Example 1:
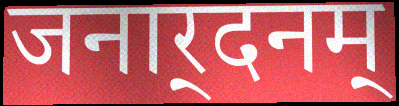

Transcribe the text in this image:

जनार्दनम्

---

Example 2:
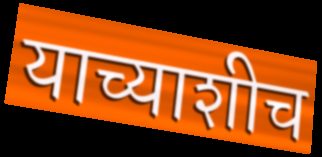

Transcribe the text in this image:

याच्याशीच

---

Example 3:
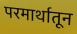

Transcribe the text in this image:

परमार्थातून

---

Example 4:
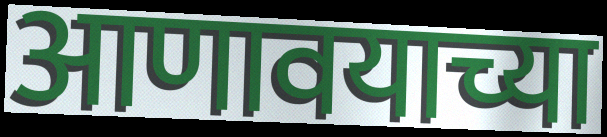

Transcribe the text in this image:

आणावयाच्या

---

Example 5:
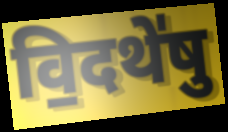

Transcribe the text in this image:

वि॒दथे॑षु